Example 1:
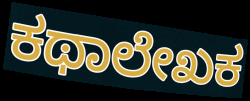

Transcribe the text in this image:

ಕಥಾಲೇಖಕ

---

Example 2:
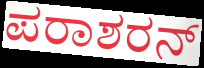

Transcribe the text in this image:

ಪರಾಶರನ್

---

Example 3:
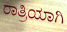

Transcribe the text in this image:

ರಾತ್ರಿಯಾಗಿ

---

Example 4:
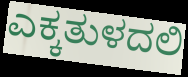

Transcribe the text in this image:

ಎಕ್ಕತುಳದಲಿ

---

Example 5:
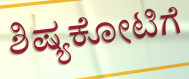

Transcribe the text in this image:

ಶಿಷ್ಯಕೋಟಿಗೆ